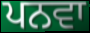
ਪਨਵਾ